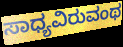
ಸಾಧ್ಯವಿರುವಂಥ